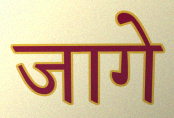
जागे